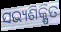
ସଭ୍ୟଶିକ୍ଷିତ